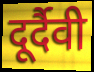
दूर्दैवी